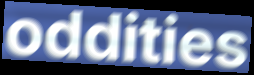
oddities